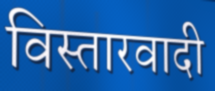
विस्तारवादी